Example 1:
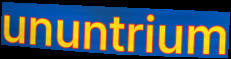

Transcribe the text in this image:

ununtrium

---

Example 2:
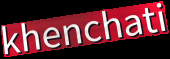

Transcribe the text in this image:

khenchati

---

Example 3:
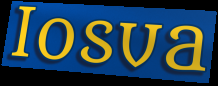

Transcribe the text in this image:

Iosua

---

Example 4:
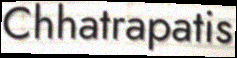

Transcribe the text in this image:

Chhatrapatis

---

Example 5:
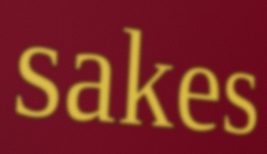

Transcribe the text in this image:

sakes